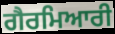
ਗੈਰਮਿਆਰੀ